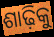
ଶାଢ଼ିକୁ